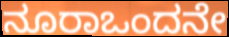
ನೂರಾಒಂದನೇ